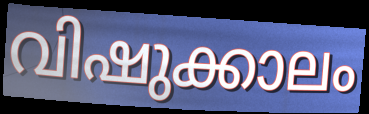
വിഷുക്കാലം